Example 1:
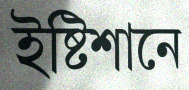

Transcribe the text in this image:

ইষ্টিশানে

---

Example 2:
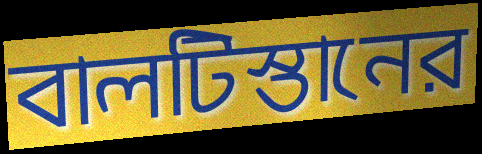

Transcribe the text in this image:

বালটিস্তানের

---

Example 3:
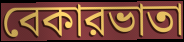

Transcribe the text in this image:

বেকারভাতা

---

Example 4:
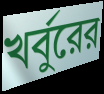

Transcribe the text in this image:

খর্বুরের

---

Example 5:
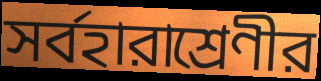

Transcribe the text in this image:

সর্বহারাশ্রেণীর